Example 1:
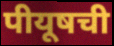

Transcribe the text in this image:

पीयूषची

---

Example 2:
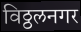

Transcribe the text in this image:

विठ्ठलनगर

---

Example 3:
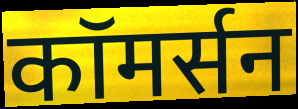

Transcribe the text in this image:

कॉमर्सन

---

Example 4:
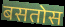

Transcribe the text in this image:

बसतोस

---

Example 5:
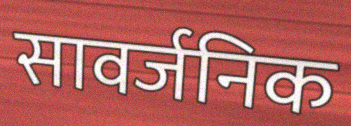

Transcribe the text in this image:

सावर्जनिक